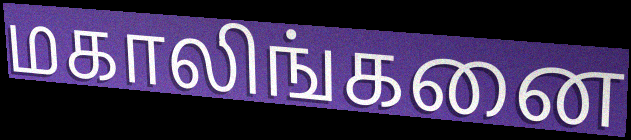
மகாலிங்கனை